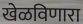
खेळविणारा